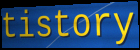
tistory